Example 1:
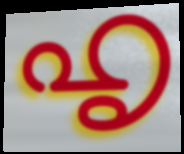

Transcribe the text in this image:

ഹൃ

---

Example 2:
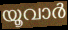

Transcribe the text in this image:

യൂവാർ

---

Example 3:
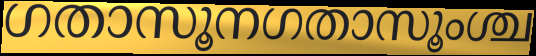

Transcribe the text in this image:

ഗതാസൂനഗതാസൂംശ്ച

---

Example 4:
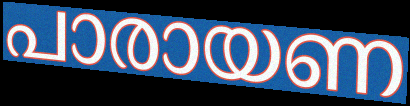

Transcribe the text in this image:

പാരായണ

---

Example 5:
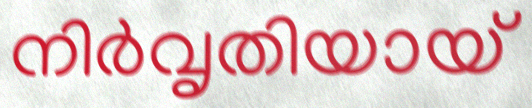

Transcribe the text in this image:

നിർവൃതിയായ്